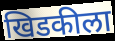
खिडकीला